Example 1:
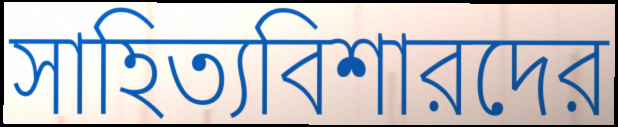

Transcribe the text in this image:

সাহিত্যবিশারদের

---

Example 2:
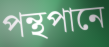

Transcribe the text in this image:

পন্থপানে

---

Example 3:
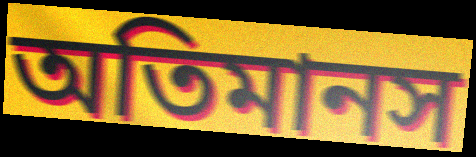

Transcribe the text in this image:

অতিমানস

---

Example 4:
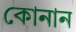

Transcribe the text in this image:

কোনান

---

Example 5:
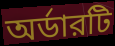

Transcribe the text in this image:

অর্ডারটি